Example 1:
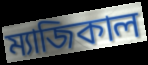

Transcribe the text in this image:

ম্যাজিকাল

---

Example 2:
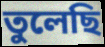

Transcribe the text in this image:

তুলেছি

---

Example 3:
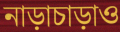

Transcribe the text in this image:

নাড়াচাড়াও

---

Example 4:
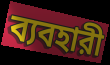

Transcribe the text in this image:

ব্যবহারী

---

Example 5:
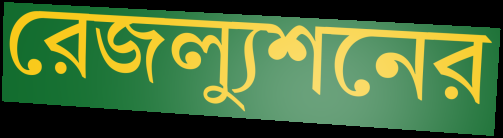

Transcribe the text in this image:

রেজল্যুশনের